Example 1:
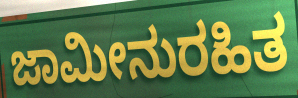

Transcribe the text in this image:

ಜಾಮೀನುರಹಿತ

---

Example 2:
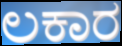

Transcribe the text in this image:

ಲಕಾರ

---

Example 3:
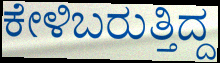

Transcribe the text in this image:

ಕೇಳಿಬರುತ್ತಿದ್ದ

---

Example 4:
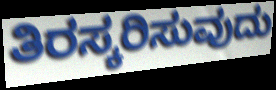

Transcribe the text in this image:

ತಿರಸ್ಕರಿಸುವುದು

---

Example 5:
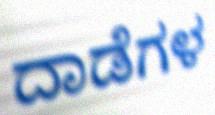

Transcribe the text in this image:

ದಾಡೆಗಳ